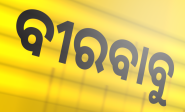
ବୀରବାବୁ